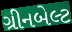
ગ્રીનબેલ્ટ